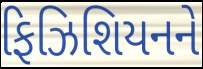
ફિઝિશિયનને